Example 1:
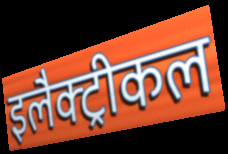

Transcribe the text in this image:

इलैक्ट्रीकल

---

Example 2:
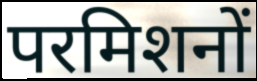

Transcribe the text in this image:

परमिशनों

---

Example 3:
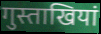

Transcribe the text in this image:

गुस्ताखियां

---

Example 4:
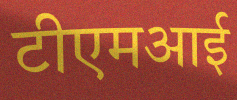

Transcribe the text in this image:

टीएमआई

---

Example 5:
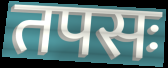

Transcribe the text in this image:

तपसः